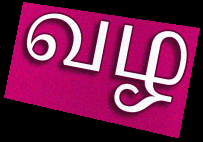
வழ